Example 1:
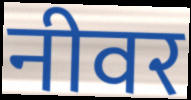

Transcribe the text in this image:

नीवर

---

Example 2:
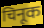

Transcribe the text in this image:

चिनूक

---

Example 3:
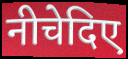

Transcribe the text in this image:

नीचेदिए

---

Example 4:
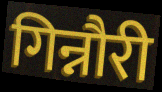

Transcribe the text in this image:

गिन्नौरी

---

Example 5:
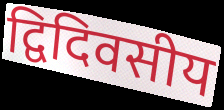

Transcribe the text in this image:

द्विदिवसीय